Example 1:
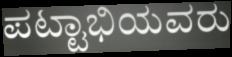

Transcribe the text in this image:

ಪಟ್ಟಾಭಿಯವರು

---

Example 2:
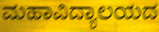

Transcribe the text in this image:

ಮಹಾವಿದ್ಯಾಲಯದ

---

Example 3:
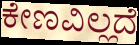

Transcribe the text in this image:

ಕೇಣವಿಲ್ಲದೆ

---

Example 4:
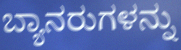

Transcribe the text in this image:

ಬ್ಯಾನರುಗಳನ್ನು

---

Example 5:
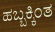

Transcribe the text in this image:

ಹಬ್ಬಕ್ಕಿಂತ